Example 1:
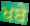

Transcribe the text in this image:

ਖਬੇ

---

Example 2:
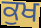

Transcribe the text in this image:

ਕੁਖ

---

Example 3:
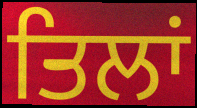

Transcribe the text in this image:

ਤਿਲਾਂ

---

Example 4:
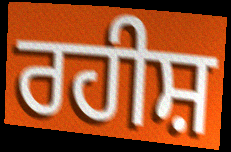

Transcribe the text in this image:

ਰਹੀਸ਼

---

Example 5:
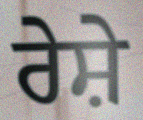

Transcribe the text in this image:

ਰੇਸ਼ੇ